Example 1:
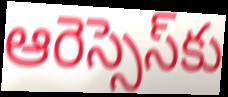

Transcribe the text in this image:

ఆరెస్సెస్‌కు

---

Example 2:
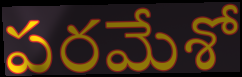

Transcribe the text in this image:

పరమేశో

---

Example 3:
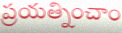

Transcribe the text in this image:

ప్రయత్నించాం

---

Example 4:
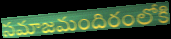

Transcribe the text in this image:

సమాజమందిరంలోకి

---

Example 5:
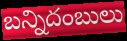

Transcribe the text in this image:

బన్నిదంబులు